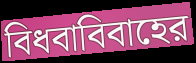
বিধবাবিবাহের